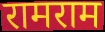
रामराम